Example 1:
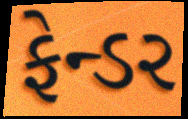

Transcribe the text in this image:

ફેન્ડર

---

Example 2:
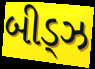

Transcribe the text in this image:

બીડ્ઝ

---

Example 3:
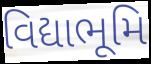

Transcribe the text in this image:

વિદ્યાભૂમિ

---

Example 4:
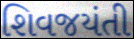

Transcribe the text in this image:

શિવજયંતી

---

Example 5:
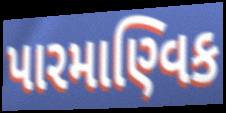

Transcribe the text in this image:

પારમાણ્વિક